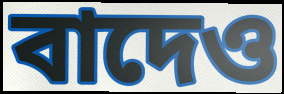
বাদেও